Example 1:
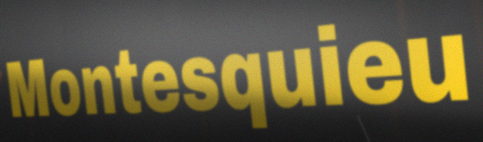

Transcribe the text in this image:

Montesquieu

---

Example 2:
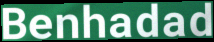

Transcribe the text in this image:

Benhadad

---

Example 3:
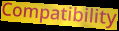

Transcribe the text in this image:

Compatibility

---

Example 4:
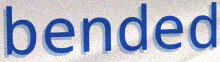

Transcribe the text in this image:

bended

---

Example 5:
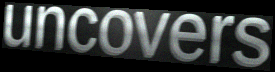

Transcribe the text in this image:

uncovers